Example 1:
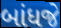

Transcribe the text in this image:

બાંધજે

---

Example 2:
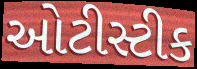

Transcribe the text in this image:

ઓટીસ્ટીક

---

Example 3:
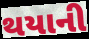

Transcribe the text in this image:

થયાની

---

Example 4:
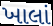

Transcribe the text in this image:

ખાલાં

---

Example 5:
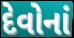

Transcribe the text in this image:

દેવોનાં